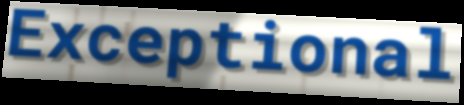
Exceptional